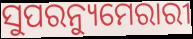
ସୁପରନ୍ୟୁମେରାରୀ